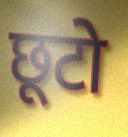
छूटो